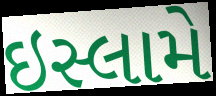
ઇસ્લામે